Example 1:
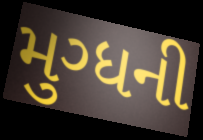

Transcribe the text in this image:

મુગ્ધની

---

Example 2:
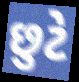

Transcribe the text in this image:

છુટે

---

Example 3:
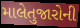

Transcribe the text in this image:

માલેતુજારોની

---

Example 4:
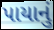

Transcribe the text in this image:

પાયાનું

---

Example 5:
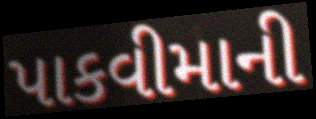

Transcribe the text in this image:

પાકવીમાની